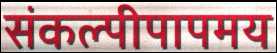
संकल्पीपापमय